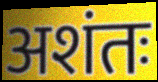
अशंतः